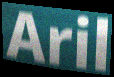
Aril